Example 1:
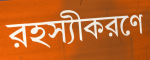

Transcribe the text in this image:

রহস্যীকরণে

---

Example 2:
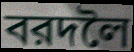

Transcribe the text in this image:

বরদলৈ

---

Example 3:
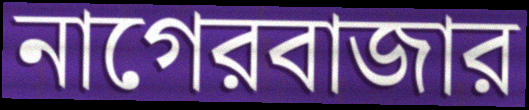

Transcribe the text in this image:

নাগেরবাজার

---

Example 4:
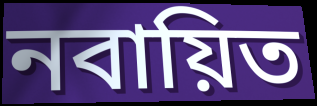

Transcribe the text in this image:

নবায়িত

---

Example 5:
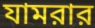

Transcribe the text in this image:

যামরার